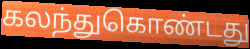
கலந்துகொண்டது